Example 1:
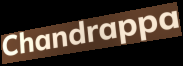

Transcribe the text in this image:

Chandrappa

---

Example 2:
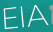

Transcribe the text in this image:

EIA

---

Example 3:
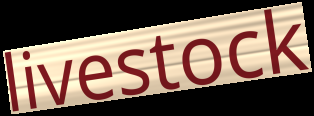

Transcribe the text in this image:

livestock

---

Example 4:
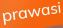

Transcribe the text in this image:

prawasi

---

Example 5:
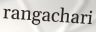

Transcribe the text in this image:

rangachari